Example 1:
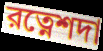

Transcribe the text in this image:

রত্নেশদা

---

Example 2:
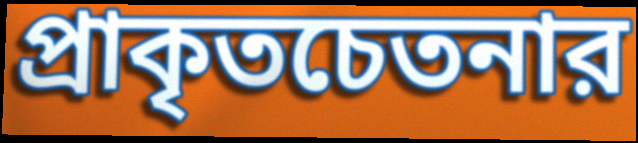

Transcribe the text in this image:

প্রাকৃতচেতনার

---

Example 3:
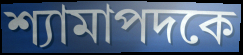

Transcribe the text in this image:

শ্যামাপদকে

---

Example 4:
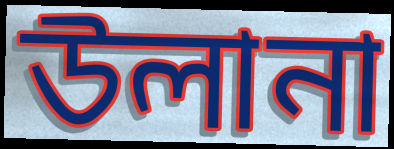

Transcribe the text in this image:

উলানা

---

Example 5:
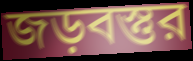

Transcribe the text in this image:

জড়বস্তুর